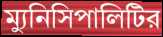
ম্যুনিসিপালিটির